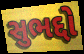
સુભદ્દો